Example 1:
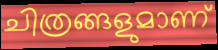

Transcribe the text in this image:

ചിത്രങ്ങളുമാണ്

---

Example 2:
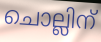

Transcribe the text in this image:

ചൊല്ലിന്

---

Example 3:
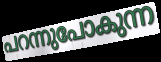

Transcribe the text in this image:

പറന്നുപോകുന്ന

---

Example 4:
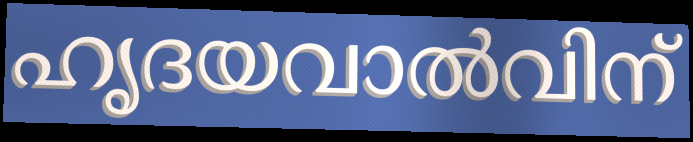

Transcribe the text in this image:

ഹൃദയവാൽവിന്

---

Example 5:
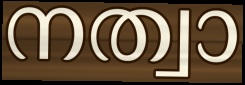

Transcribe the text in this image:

നത്വാ